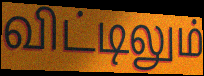
விட்டிலும்